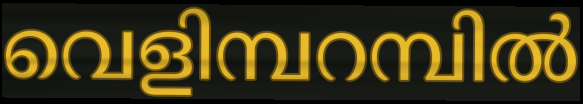
വെളിമ്പറമ്പിൽ